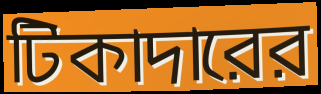
টিকাদারের